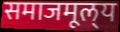
समाजमूल्य